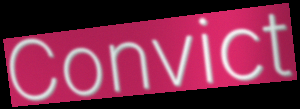
Convict